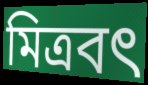
মিত্রবৎ